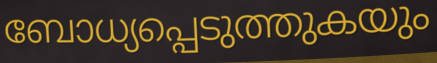
ബോധ്യപ്പെടുത്തുകയും